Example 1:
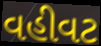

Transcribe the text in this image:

વહીવટ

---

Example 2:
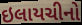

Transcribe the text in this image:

ઇલાયચીનો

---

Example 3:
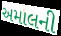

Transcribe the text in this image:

અમાલની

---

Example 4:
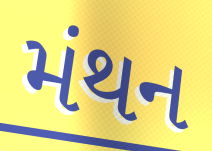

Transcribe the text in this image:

મંથન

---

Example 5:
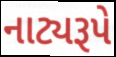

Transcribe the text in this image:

નાટ્યરૂપે